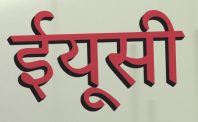
ईयूसी